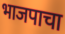
भाजपाचा